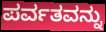
ಪರ್ವತವನ್ನು